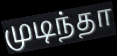
முடிந்தா